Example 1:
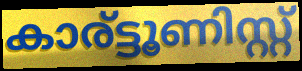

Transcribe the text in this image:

കാര്ട്ടൂണിസ്റ്റ്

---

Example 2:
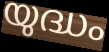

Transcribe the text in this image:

യുദ്ധം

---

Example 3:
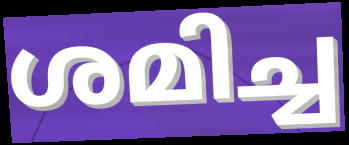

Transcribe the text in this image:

ശമിച്ച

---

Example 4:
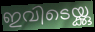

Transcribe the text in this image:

ഇവിടെയ്ക്കു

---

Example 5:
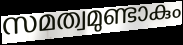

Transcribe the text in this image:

സമത്വമുണ്ടാകും